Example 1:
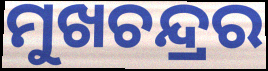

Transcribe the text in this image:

ମୁଖଚନ୍ଦ୍ରର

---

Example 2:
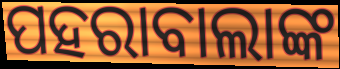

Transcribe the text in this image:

ପହରାବାଲାଙ୍କ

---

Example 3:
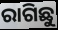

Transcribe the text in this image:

ରାଗିଛୁ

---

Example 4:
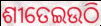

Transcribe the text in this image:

ଶୀତେଇଉଠି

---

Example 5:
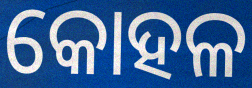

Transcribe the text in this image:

କୋହଳ